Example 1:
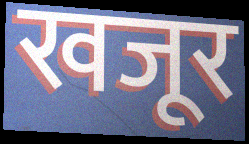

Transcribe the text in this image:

खजूर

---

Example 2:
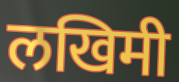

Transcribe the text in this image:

लखिमी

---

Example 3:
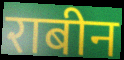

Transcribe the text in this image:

राबीन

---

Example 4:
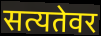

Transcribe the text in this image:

सत्यतेवर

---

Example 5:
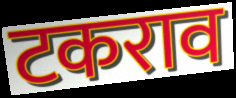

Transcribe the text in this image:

टकराव